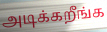
அடிக்கறீங்க